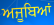
ਅਜੂਬਿਆਂ